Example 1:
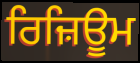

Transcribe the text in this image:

ਰਿਜ਼ਿਊਮ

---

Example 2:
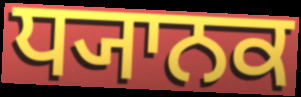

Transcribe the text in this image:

ਧ੍ਯਾਨਕ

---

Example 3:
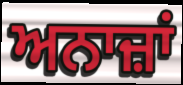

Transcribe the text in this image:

ਅਨਾਜ਼ਾਂ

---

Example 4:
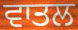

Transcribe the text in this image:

ਵਾਤਲ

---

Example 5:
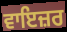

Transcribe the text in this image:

ਵਾਇਜ਼ਰ